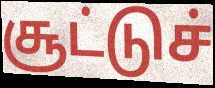
சூட்டுச்